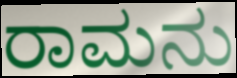
ರಾಮನು